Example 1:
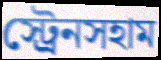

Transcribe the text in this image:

স্ট্রেনসহাম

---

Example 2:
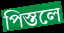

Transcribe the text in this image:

পিস্তলে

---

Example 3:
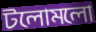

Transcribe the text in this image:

টলোমলো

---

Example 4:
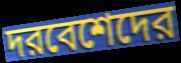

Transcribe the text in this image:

দরবেশেদের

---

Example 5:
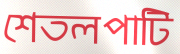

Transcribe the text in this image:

শেতলপাটি